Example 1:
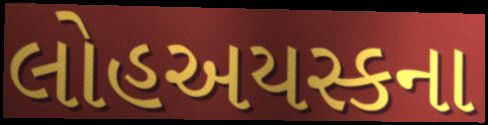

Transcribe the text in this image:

લોહઅયસ્કના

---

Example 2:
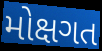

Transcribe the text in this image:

મોક્ષગત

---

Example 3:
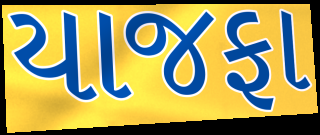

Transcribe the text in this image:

યાજફા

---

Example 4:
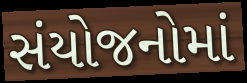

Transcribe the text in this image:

સંયોજનોમાં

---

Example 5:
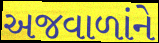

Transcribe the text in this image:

અજવાળાંને